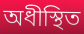
অধীস্থিত